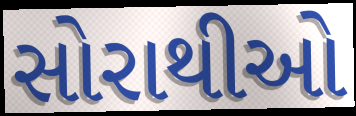
સોરાથીઓ